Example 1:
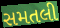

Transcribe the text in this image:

સમતલી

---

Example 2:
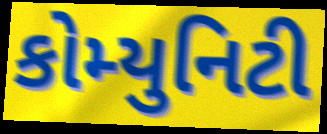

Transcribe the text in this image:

કોમ્યુનિટી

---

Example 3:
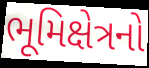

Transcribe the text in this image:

ભૂમિક્ષેત્રનો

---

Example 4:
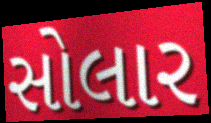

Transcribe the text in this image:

સોલાર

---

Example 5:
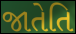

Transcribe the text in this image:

જાતેતિ